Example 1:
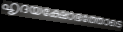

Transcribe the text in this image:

ഹൃദയക്ഷോഭത്തോടെ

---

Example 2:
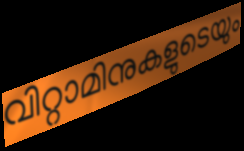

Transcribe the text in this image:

വിറ്റാമിനുകളുടെയും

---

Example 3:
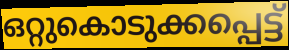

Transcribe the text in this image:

ഒറ്റുകൊടുക്കപ്പെട്ട്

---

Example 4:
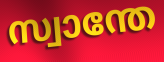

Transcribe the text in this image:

സ്വാന്തേ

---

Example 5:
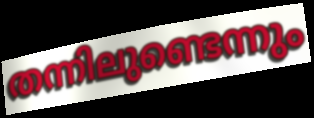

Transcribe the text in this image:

തന്നിലുണ്ടെന്നും